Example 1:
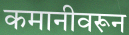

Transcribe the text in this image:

कमानीवरून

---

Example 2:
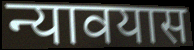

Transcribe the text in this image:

न्यावयास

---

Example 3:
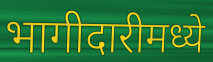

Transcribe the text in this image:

भागीदारीमध्ये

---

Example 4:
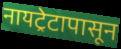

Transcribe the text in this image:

नायट्रेटापासून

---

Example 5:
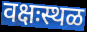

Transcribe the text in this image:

वक्षःस्थळ